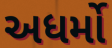
અધર્મો